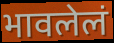
भावलेलं